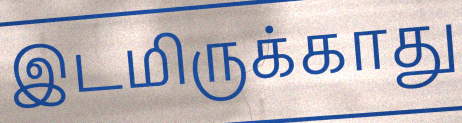
இடமிருக்காது